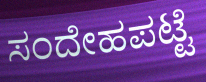
ಸಂದೇಹಪಟ್ಟೆ